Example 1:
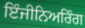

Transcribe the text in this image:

ਇੰਜੀਨਿਅਰਿੰਗ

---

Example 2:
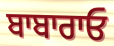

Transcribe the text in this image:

ਬਾਬਾਰਾਓ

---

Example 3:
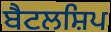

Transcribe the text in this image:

ਬੈਟਲਸ਼ਿਪ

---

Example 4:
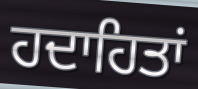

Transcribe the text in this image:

ਹਦਾਹਿਤਾਂ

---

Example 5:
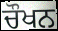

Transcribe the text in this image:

ਚੌਖਨ